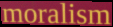
moralism